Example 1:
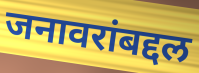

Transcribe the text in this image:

जनावरांबद्दल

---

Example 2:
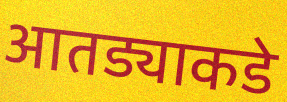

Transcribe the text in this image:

आतड्याकडे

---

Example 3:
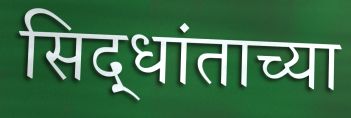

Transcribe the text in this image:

सिद्धांताच्या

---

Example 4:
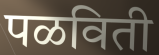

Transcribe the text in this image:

पळविती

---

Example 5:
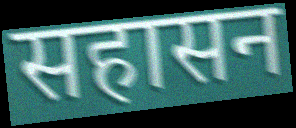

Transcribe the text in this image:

सहासन